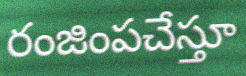
రంజింపచేస్తూ